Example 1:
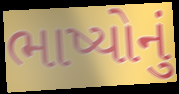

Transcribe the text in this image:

ભાષ્યોનું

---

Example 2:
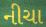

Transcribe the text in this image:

નીચા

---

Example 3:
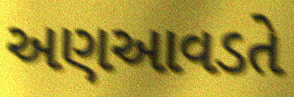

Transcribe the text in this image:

અણઆવડતે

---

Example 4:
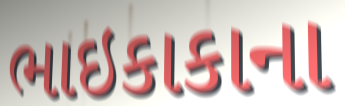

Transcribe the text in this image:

ભાઇકાકાના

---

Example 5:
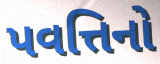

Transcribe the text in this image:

પવત્તિનો